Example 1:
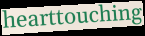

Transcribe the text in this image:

hearttouching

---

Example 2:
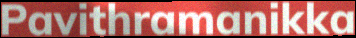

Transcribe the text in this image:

Pavithramanikka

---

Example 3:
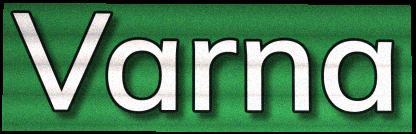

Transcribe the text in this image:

Varna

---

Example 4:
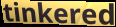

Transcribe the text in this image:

tinkered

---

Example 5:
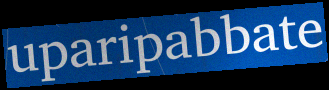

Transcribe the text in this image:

uparipabbate